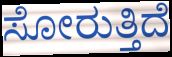
ಸೋರುತ್ತಿದೆ